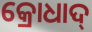
କ୍ରୋଧାଦ୍